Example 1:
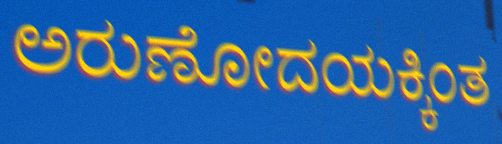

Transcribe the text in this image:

ಅರುಣೋದಯಕ್ಕಿಂತ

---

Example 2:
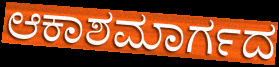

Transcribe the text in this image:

ಆಕಾಶಮಾರ್ಗದ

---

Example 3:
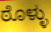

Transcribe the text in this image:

ಠೊಳ್ಳು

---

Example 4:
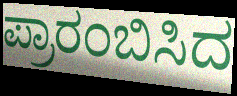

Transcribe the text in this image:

ಪ್ರಾರಂಬಿಸಿದ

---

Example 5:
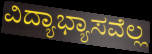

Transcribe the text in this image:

ವಿದ್ಯಾಭ್ಯಾಸವೆಲ್ಲ